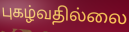
புகழ்வதில்லை